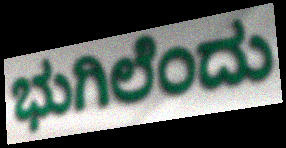
ಭುಗಿಲೆಂದು